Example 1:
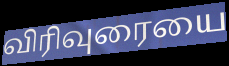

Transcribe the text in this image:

விரிவுரையை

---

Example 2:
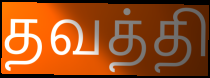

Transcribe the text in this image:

தவத்தி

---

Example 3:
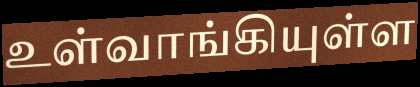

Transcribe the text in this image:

உள்வாங்கியுள்ள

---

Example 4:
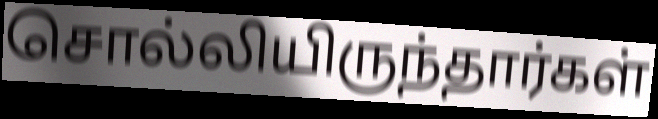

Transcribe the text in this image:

சொல்லியிருந்தார்கள்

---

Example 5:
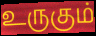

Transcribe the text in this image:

உருகும்